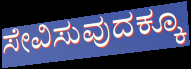
ಸೇವಿಸುವುದಕ್ಕೂ